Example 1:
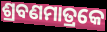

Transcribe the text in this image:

ଶ୍ରବଣମାତ୍ରକେ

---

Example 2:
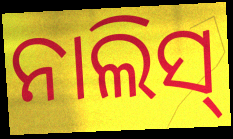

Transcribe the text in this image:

ନାଲିସ୍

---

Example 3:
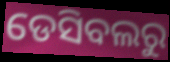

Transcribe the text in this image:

ଡେସିବଲରୁ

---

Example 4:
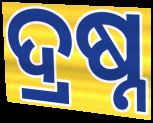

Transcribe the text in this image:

ଦ୍ରଷ୍ନ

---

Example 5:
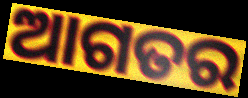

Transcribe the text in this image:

ଆଗତର